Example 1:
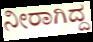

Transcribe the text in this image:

ನೀರಾಗಿದ್ದ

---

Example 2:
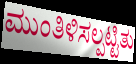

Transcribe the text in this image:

ಮುಂತಿಳಿಸಲ್ಪಟ್ಟಿತು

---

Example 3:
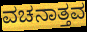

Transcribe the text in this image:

ವಚನಾತ್ತವ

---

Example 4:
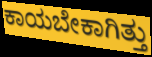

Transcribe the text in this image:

ಕಾಯಬೇಕಾಗಿತ್ತು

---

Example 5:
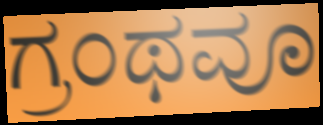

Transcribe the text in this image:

ಗ್ರಂಥವೂ